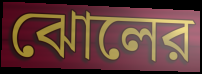
ঝোলের